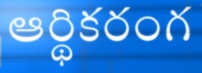
ఆర్థికరంగ